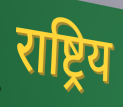
राष्ट्रिय